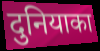
दुनियाका